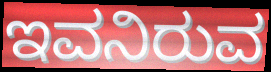
ಇವನಿರುವ